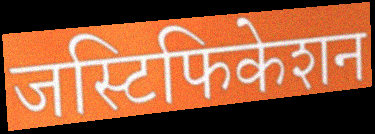
जस्टिफिकेशन